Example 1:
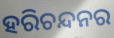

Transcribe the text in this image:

ହରିଚନ୍ଦନର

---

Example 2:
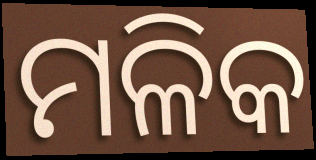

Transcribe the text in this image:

ମଳିକ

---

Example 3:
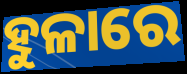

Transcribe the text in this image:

ହୁଳାରେ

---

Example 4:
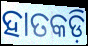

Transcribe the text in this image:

ହାତକଡ଼ି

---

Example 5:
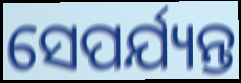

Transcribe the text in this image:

ସେପର୍ଯ୍ୟନ୍ତ